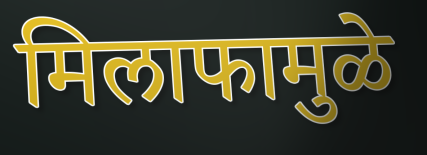
मिलाफामुळे